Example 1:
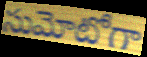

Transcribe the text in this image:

సుమోటోగా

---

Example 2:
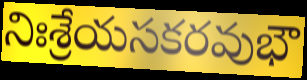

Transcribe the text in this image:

నిఃశ్రేయసకరవుభౌ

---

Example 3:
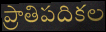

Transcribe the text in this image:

ప్రాతిపదికల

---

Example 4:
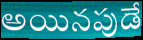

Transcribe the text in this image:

అయినపుడే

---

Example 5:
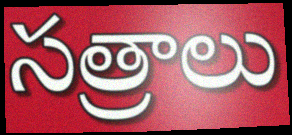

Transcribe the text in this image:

సత్రాలు